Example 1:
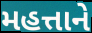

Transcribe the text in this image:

મહત્તાને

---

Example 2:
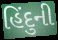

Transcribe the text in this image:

હિંદુની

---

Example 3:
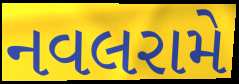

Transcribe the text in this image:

નવલરામે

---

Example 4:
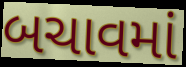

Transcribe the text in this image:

બચાવમાં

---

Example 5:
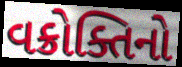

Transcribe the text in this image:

વક્રોક્તિનો